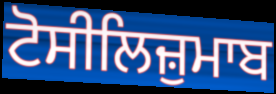
ਟੋਸੀਲਿਜ਼ੁਮਾਬ